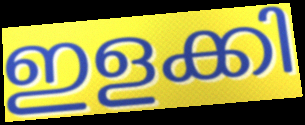
ഇളക്കി